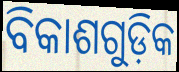
ବିକାଶଗୁଡ଼ିକ